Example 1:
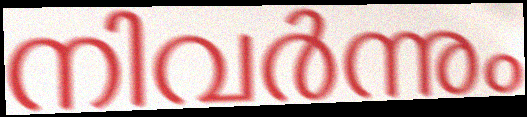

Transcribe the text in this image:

നിവർന്നും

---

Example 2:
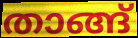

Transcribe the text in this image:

താങ്ങ്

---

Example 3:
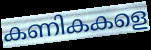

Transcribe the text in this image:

കണികകളെ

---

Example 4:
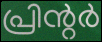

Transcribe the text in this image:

പ്രിന്റർ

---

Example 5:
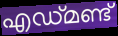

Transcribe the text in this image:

എഡ്മണ്ട്